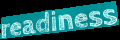
readiness